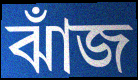
ঝাঁজ